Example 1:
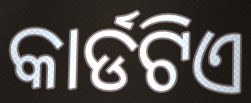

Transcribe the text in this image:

କାର୍ଡଟିଏ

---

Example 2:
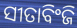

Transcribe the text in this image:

ସୀତାବିଂଜି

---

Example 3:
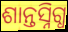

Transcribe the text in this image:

ଶାନ୍ତସ୍ନିଗ୍ଧ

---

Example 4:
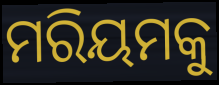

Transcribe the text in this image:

ମରିୟମକୁ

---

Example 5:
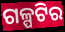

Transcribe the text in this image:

ଗଳ୍ପଟିର